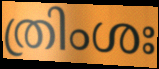
ത്രിംശഃ